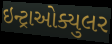
ઇન્ટ્રાઓક્યુલર